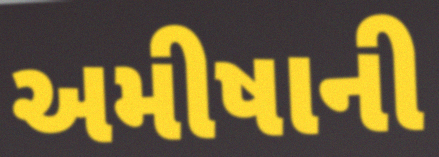
અમીષાની